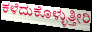
ಕಳೆದುಕೊಳ್ಳುತ್ತೀರಿ